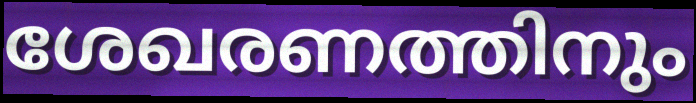
ശേഖരണത്തിനും